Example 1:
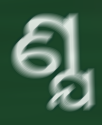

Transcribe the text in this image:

ଣ୍ଯ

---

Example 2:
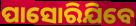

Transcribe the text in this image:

ପାସୋରିଯିବେ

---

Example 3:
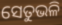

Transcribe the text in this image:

ସେତୁଭଳି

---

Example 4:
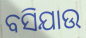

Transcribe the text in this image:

ବସିଯାଉ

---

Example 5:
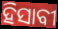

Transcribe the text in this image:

ହିସାବୀ